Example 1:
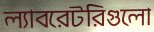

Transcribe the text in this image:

ল্যাবরেটরিগুলো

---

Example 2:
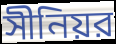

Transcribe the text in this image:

সীনিয়র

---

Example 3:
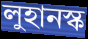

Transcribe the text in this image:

লুহানস্ক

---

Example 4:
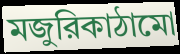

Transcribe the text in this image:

মজুরিকাঠামো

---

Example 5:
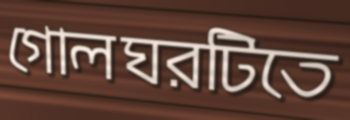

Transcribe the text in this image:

গোলঘরটিতে